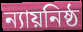
ন্যায়নিষ্ঠ